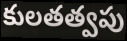
కులతత్వపు